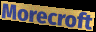
Morecroft